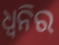
ଧ୍ୱନିର